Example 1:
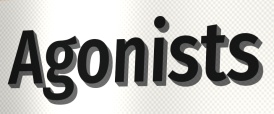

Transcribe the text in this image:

Agonists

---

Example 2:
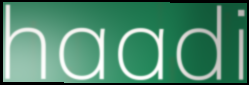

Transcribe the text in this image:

haadi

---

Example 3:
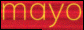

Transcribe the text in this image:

mayo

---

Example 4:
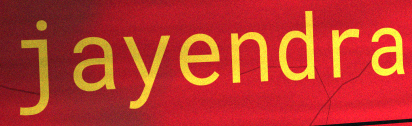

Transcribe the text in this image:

jayendra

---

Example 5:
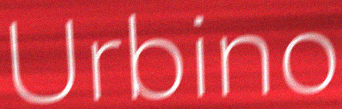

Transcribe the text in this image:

Urbino